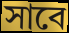
সাবে